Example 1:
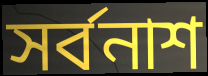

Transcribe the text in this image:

সর্বনাশ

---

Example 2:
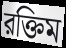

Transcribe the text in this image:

রক্তিম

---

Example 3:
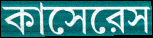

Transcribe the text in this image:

কাসেরেস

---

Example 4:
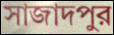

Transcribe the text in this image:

সাজাদপুর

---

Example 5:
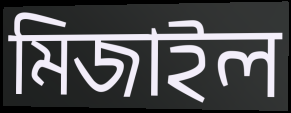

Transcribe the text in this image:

মিজাইল